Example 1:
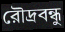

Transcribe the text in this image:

রৌদ্রবন্ধু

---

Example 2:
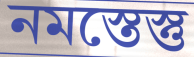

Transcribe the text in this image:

নমস্তেস্তু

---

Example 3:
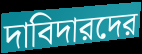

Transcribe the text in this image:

দাবিদারদের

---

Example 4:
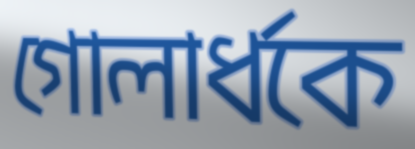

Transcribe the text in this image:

গোলার্ধকে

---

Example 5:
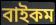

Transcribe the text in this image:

বাইকম